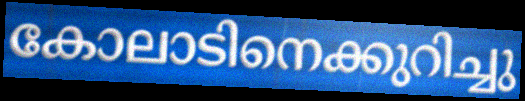
കോലാടിനെക്കുറിച്ചു